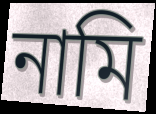
নামি